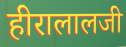
हीरालालजी